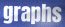
graphs